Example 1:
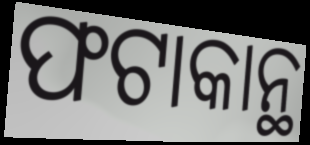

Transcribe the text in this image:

ଫଟାକାନ୍ଥ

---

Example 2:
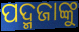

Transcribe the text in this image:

ପଦ୍ମଜାଙ୍କୁ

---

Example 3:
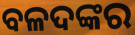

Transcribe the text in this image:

ବଳଦଙ୍କର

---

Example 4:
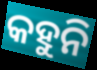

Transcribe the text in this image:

କହୁନି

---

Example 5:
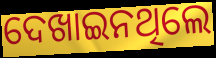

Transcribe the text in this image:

ଦେଖାଇନଥିଲେ